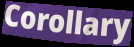
Corollary